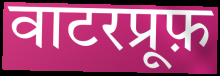
वाटरप्रूफ़